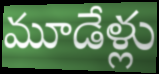
మూడేళ్లు